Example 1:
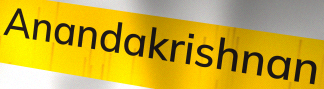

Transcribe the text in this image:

Anandakrishnan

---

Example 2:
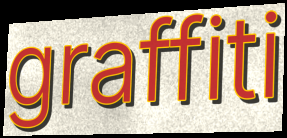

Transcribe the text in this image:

graffiti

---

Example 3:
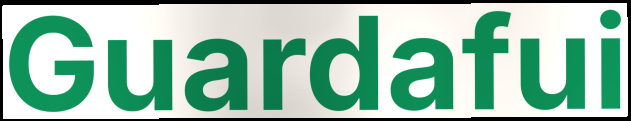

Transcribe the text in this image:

Guardafui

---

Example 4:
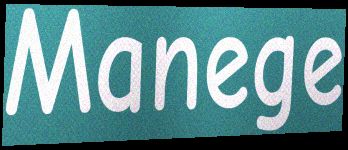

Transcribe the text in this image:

Manege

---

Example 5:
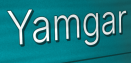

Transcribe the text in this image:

Yamgar